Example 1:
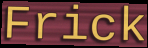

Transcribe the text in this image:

Frick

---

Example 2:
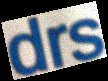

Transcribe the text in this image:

drs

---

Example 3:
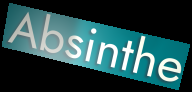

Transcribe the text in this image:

Absinthe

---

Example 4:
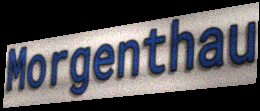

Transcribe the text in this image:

Morgenthau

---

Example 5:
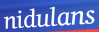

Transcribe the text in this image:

nidulans